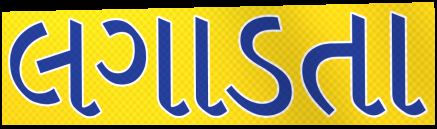
લગાડતા